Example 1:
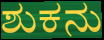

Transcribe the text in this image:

ಶುಕನು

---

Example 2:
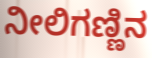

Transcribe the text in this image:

ನೀಲಿಗಣ್ಣಿನ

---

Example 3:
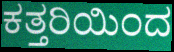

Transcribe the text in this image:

ಕತ್ತರಿಯಿಂದ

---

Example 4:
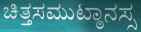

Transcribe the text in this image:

ಚಿತ್ತಸಮುಟ್ಠಾನಸ್ಸ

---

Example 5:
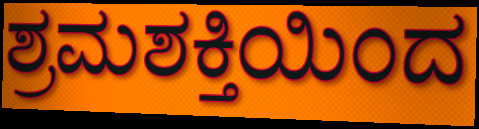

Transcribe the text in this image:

ಶ್ರಮಶಕ್ತಿಯಿಂದ